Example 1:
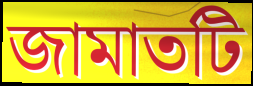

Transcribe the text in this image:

জামাতটি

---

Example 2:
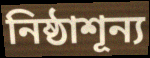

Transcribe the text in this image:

নিষ্ঠাশূন্য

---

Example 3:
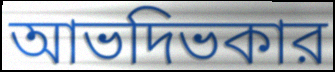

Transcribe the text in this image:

আভদিভকার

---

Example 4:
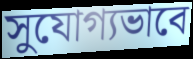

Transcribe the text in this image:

সুযোগ্যভাবে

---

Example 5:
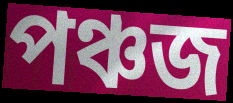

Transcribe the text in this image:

পঞ্চজ